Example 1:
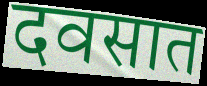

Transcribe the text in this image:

दवसात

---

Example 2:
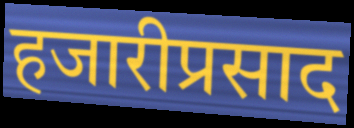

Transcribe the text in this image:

हजारीप्रसाद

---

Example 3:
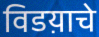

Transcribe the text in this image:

विडय़ाचे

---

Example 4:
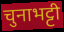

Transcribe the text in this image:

चुनाभट्टी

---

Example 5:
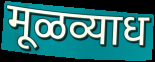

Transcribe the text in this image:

मूळव्याध